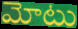
మోటు